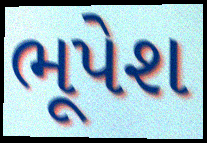
ભૂપેશ